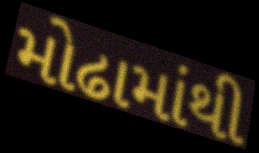
મોઢામાંથી